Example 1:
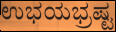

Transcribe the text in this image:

ಉಭಯಭ್ರಷ್ಟ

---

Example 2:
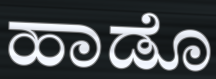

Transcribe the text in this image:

ಹಾಡೊ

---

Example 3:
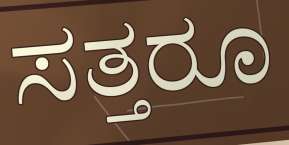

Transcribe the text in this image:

ಸತ್ತರೂ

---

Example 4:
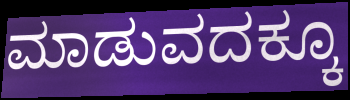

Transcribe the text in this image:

ಮಾಡುವದಕ್ಕೂ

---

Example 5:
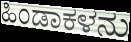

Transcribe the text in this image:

ಹಿಂಡಾಕಳನು